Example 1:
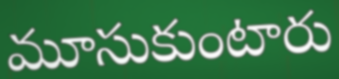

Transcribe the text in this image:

మూసుకుంటారు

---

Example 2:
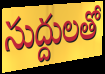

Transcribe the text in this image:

సుద్దులతో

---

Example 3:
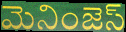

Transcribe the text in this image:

మెనింజెస్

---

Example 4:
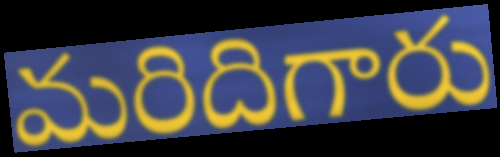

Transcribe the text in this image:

మరిదిగారు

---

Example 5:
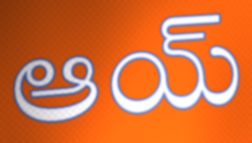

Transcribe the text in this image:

ఆయ్